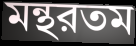
মন্থরতম